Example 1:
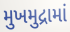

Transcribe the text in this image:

મુખમુદ્રામાં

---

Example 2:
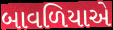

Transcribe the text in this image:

બાવળિયાએ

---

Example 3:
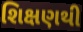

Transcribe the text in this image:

શિક્ષણથી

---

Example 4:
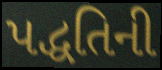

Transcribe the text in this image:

પદ્ધતિની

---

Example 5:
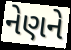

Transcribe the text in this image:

નેણને